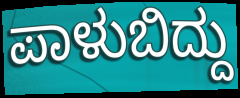
ಪಾಳುಬಿದ್ದು